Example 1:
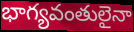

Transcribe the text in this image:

భాగ్యవంతులైనా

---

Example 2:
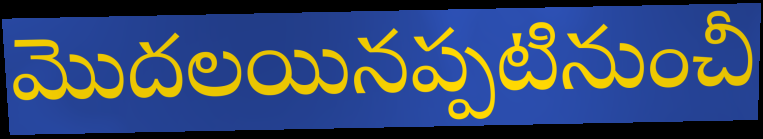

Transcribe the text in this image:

మొదలయినప్పటినుంచీ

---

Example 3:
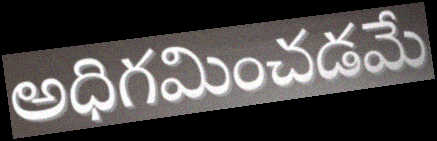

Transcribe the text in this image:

అధిగమించడమే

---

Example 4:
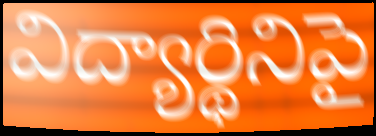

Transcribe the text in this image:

విద్యార్థినిపై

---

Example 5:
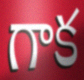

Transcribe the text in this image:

గాక